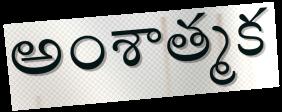
అంశాత్మక